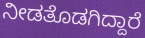
ನೀಡತೊಡಗಿದ್ದಾರೆ